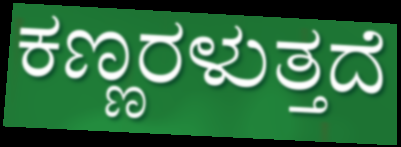
ಕಣ್ಣರಳುತ್ತದೆ